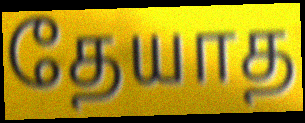
தேயாத